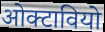
ओक्टावियो